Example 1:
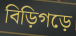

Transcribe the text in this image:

বিড়িগড়ে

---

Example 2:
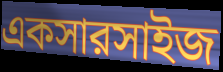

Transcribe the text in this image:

একসারসাইজ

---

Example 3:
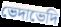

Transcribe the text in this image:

ভেদাভেদি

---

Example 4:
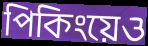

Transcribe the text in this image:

পিকিংয়েও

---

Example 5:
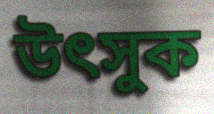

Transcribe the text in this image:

উৎসুক